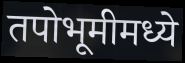
तपोभूमीमध्ये